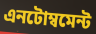
এনটোম্বমেন্ট